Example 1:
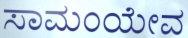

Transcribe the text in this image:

ಸಾಮಂಯೇವ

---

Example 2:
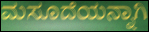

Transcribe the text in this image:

ಮಸೂದೆಯನ್ನಾಗಿ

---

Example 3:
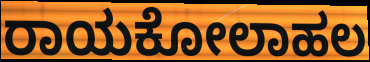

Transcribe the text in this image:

ರಾಯಕೋಲಾಹಲ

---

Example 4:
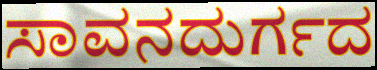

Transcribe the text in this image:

ಸಾವನದುರ್ಗದ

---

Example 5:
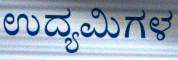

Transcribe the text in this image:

ಉದ್ಯಮಿಗಳ